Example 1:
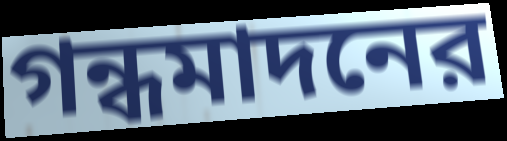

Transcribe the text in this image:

গন্ধমাদনের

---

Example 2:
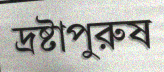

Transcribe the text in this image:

দ্রষ্টাপুরুষ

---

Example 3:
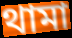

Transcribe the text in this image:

থামা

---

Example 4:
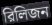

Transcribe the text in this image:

রিলিজন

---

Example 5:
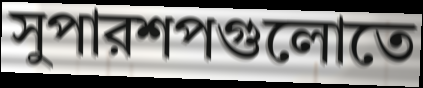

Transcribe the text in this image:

সুপারশপগুলোতে